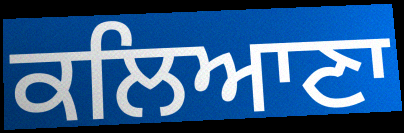
ਕਲਿਆਣਾ